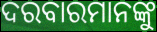
ଦରବାରମାନଙ୍କୁ